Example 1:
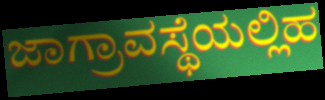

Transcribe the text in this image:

ಜಾಗ್ರಾವಸ್ಥೆಯಲ್ಲಿಹ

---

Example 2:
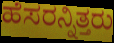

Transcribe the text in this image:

ಹೆಸರನ್ನಿತ್ತರು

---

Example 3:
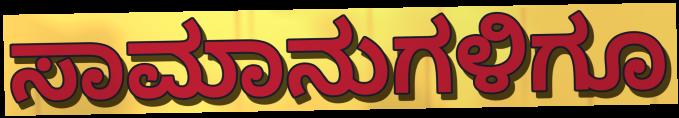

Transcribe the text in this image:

ಸಾಮಾನುಗಳಿಗೂ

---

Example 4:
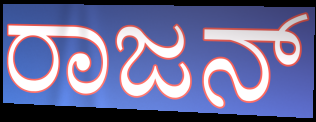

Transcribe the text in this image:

ರಾಜನ್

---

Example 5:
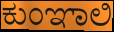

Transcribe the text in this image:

ಕುಂಞಾಲಿ